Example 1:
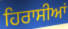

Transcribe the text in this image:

ਹਿਰਾਸੀਆਂ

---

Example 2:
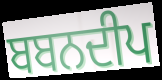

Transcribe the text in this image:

ਬਬਨਦੀਪ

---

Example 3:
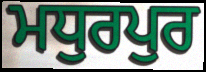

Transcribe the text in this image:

ਮਧੁਰਪੁਰ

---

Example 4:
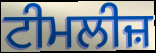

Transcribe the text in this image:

ਟੀਮਲੀਜ਼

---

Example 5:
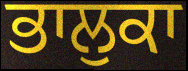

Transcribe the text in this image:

ਭਾਲੁਕਾ